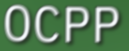
OCPP